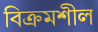
বিক্ৰমশীল